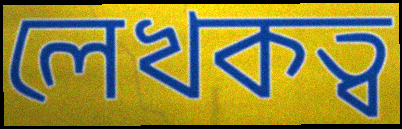
লেখকত্ব